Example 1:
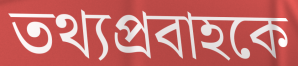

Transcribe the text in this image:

তথ্যপ্রবাহকে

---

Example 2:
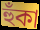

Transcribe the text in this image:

হুঁকা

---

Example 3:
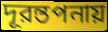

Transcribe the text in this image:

দূরন্তপনায়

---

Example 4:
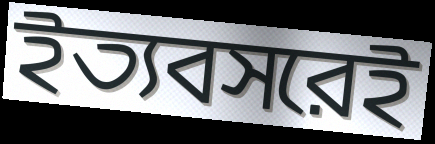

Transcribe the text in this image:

ইত্যবসরেই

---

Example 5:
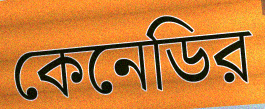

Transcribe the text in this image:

কেনেডির